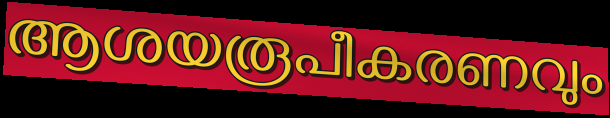
ആശയരൂപീകരണവും